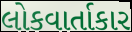
લોકવાર્તાકાર